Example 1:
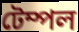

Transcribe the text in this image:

টেম্পল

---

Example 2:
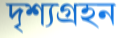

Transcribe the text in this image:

দৃশ্যগ্ৰহন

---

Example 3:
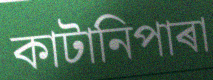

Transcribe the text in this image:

কাটানিপাৰা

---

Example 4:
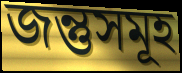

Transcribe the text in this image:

জন্তুসমূহ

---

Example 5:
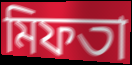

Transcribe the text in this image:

মিফতা